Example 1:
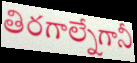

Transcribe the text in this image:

తిరగాల్నేగానీ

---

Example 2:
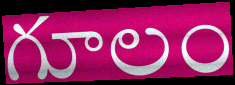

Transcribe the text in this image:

గూలం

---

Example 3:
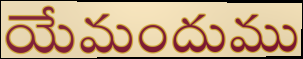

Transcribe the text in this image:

యేమందుము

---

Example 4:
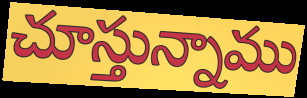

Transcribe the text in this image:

చూస్తున్నాము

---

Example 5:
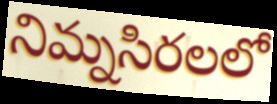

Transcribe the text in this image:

నిమ్నసిరలలో